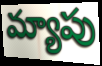
మ్యాపు